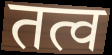
तत्व